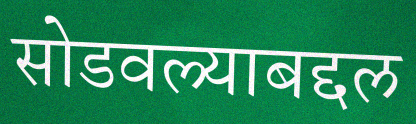
सोडवल्याबद्दल